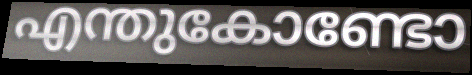
എന്തുകോണ്ടോ